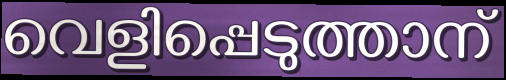
വെളിപ്പെടുത്താന്